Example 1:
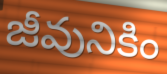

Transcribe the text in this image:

జీవునికిం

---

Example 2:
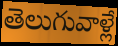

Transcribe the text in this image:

తెలుగువాళ్లే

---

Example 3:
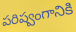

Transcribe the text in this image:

పరిష్వంగానికి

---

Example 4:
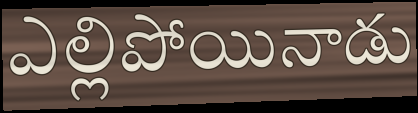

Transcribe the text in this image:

ఎల్లిపోయినాడు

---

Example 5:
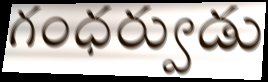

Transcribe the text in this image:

గంధర్వుడు